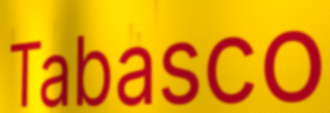
Tabasco